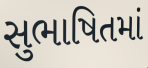
સુભાષિતમાં